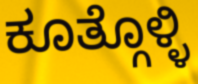
ಕೂತ್ಗೊಳ್ಳಿ